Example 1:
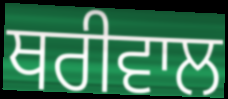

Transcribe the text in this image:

ਥਰੀਵਾਲ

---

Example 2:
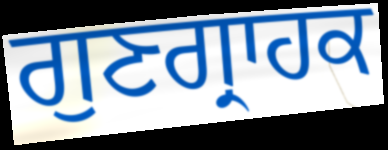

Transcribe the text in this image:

ਗੁਣਗ੍ਰਾਹਕ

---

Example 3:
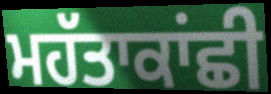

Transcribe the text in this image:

ਮਹੱਤਾਕਾਂਛੀ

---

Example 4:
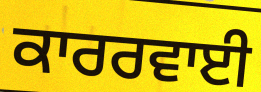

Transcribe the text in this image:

ਕਾਰਰਵਾਈ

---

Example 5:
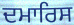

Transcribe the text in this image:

ਦਮਾਰਿਸ